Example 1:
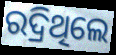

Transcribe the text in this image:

ରଦ୍ରିଥିଲେ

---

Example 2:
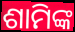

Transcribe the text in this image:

ଶାମିଙ୍କ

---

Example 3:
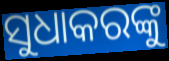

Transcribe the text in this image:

ସୁଧାକରଙ୍କୁ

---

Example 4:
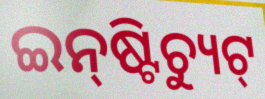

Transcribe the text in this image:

ଇନ୍‌ଷ୍ଟିଚ୍ୟୁଟ୍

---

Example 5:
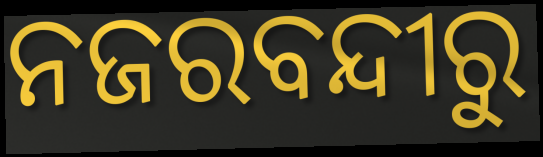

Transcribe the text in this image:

ନଜରବନ୍ଦୀରୁ